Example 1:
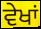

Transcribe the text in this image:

ਵੇਖਾਂ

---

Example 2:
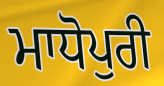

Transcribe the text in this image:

ਮਾਧੋਪੁਰੀ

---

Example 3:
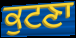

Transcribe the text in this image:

ਕੁਟਣਾ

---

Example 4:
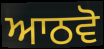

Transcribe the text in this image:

ਆਠਵੋ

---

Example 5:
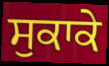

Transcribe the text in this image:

ਸੁਕਾਕੇ